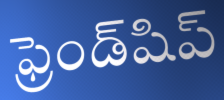
ఫ్రెండ్‌షిప్